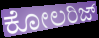
ಕೋಲರಿಜ್